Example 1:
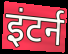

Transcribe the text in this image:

इंटर्न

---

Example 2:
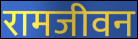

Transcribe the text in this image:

रामजीवन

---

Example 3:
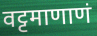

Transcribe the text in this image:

वट्टमाणाणं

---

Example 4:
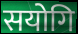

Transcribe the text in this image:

सयोगि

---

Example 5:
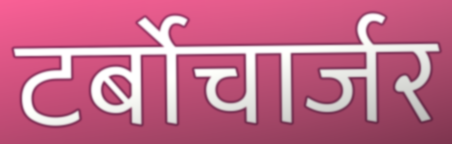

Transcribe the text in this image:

टर्बोचार्जर